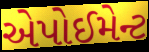
એપોઈમેન્ટ